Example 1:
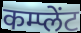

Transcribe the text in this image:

कम्प्लेंट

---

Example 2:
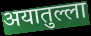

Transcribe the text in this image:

अयातुल्ला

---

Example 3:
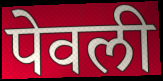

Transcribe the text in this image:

पेवली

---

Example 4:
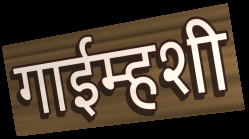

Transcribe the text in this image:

गाईम्हशी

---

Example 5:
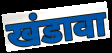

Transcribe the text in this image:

खंडावा